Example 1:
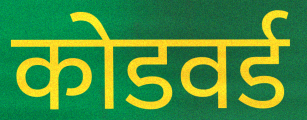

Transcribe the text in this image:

कोडवर्ड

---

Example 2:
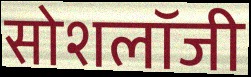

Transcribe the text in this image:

सोशलॉजी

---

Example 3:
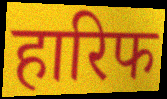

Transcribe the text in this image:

हारिफ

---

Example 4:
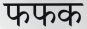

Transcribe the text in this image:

फफक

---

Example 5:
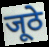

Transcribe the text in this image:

जूठे